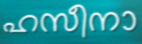
ഹസീനാ